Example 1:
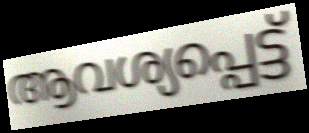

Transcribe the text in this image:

ആവശ്യപ്പെട്ട്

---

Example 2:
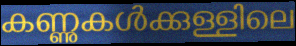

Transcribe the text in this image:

കണ്ണുകൾക്കുള്ളിലെ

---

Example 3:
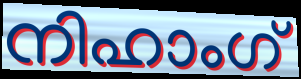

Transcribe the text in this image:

നിഹാംഗ്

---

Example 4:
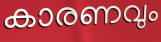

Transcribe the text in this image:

കാരണവും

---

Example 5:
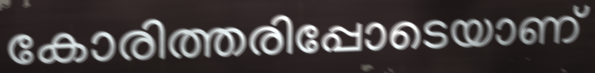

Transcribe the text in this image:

കോരിത്തരിപ്പോടെയാണ്